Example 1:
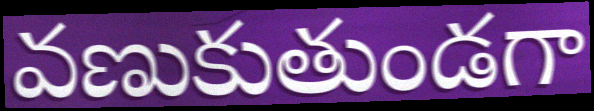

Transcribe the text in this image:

వణుకుతుండగా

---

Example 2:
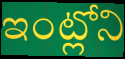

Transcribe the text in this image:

ఇంట్లోని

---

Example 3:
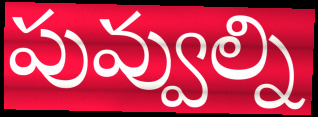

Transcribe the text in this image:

పువ్వుల్ని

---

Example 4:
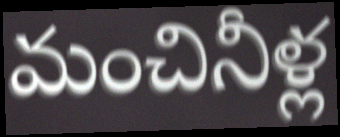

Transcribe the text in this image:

మంచినీళ్ల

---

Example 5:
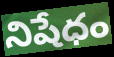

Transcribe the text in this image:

నిషేధం